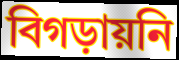
বিগড়ায়নি